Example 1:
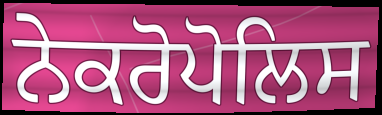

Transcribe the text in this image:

ਨੇਕਰੋਪੋਲਿਸ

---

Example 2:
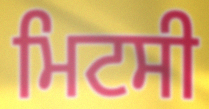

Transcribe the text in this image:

ਮਿਟਸੀ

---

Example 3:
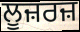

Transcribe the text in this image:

ਲੂਜ਼ਰਜ਼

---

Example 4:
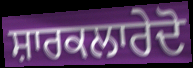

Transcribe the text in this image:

ਸ਼ਾਰਕਲਾਰੇਦੋ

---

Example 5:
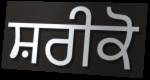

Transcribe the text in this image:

ਸ਼ਰੀਕੋ